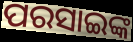
ପରସାଇଙ୍କ